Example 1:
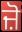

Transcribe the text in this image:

ਜ਼ੋ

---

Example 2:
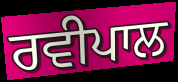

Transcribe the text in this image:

ਰਵੀਪਾਲ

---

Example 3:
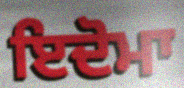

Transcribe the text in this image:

ਇਦੋਮਾ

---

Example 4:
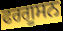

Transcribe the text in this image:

ਫਰਗੂਸਨ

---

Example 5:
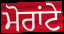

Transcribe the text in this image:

ਮੋਰਾਂਟੇ